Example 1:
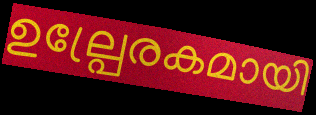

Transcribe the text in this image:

ഉല്പ്രേരകമായി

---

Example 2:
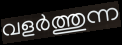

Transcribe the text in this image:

വളർത്തുന്ന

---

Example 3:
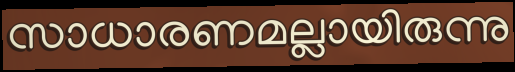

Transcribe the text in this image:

സാധാരണമല്ലായിരുന്നു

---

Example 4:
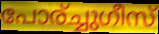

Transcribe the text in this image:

പോര്ച്ചുഗീസ്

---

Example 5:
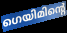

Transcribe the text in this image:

ഗെയിമിന്റെ